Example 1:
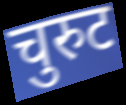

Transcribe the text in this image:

चुरुट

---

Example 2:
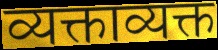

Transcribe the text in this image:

व्यक्ताव्यक्त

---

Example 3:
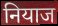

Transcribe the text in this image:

नियाज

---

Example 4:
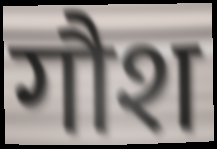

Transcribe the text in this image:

गौश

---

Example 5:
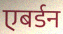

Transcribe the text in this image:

एबर्डन